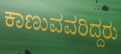
ಕಾಣುವವರಿದ್ದರು